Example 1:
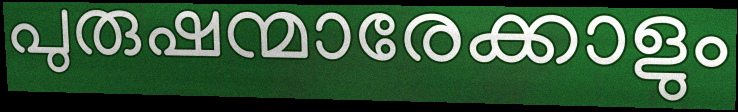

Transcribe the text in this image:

പുരുഷന്മാരേക്കാളും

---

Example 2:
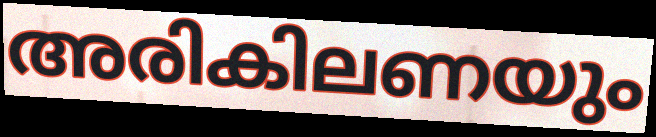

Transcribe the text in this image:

അരികിലണയും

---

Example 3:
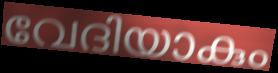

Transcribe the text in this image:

വേദിയാകും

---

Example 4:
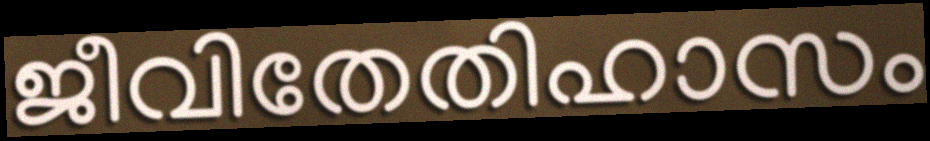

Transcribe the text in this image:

ജീവിതേതിഹാസം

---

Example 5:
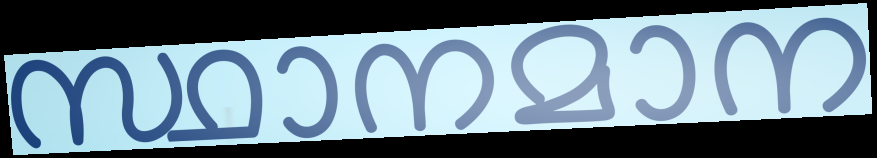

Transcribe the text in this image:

സ്ഥാനമാന